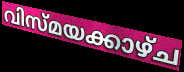
വിസ്മയക്കാഴ്ച